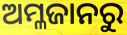
ଅମ୍ଳଜାନରୁ